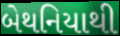
બેથનિયાથી